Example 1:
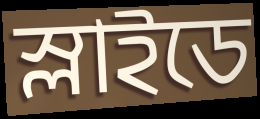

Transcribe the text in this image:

স্লাইডে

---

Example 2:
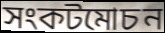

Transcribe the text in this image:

সংকটমোচন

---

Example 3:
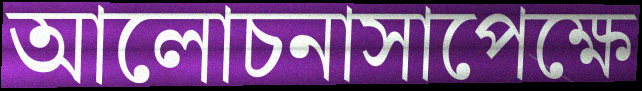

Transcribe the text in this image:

আলোচনাসাপেক্ষে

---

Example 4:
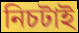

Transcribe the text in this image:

নিচটাই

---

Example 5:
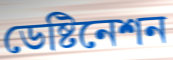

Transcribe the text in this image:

ডেষ্টিনেশন